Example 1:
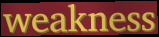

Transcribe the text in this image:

weakness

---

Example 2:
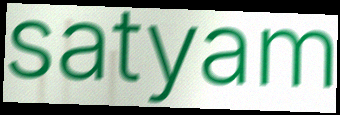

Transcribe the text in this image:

satyam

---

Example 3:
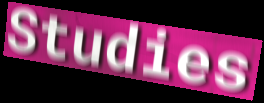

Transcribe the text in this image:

Studies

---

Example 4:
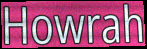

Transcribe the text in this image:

Howrah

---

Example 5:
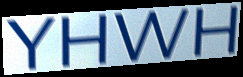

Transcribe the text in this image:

YHWH